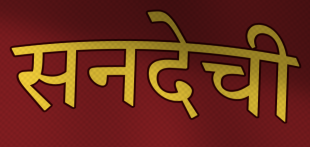
सनदेची